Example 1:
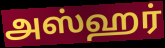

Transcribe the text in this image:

அஸ்ஹர்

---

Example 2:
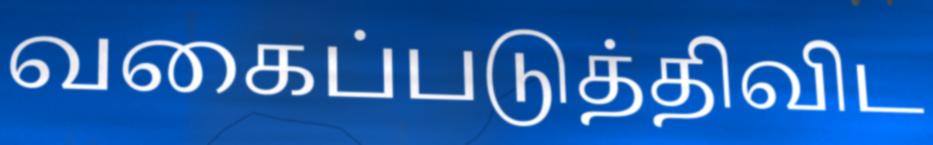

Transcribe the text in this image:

வகைப்படுத்திவிட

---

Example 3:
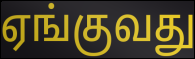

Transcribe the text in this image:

ஏங்குவது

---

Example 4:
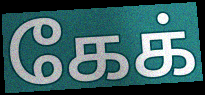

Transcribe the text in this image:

கேக்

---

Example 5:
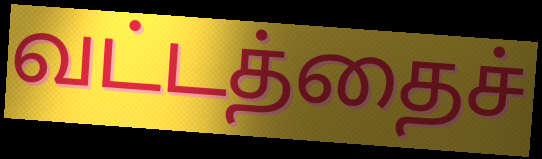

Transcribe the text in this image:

வட்டத்தைச்